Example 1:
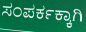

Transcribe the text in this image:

ಸಂಪರ್ಕಕ್ಕಾಗಿ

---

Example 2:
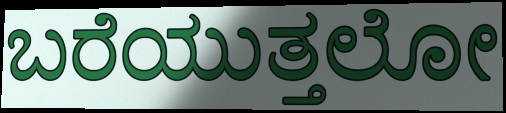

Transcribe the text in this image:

ಬರೆಯುತ್ತಲೋ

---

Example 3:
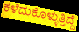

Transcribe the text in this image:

ಕಳೆದುಕೊಳ್ಳುತ್ತಿದ್ದೆ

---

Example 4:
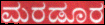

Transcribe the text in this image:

ಮರಡೂರ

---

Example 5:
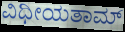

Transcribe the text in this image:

ವಿಧೀಯತಾಮ್